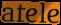
atele